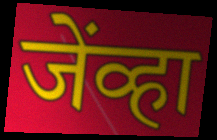
जेंव्हा